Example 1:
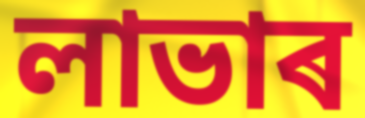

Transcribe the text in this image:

লাভাৰ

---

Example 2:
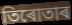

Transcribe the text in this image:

তিৰোতাৰ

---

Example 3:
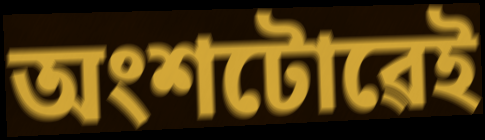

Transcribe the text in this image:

অংশটোৱেই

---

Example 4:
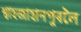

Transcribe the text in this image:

শ্বাহজাহানপুৰলৈ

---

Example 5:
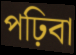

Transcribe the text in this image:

পঢ়িবা